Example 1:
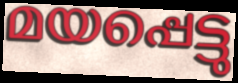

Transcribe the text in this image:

മയപ്പെട്ടു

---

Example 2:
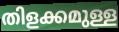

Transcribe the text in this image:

തിളക്കമുള്ള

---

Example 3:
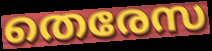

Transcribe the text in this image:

തെരേസ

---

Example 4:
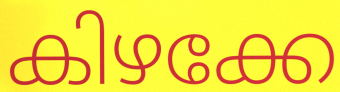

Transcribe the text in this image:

കിഴക്കേ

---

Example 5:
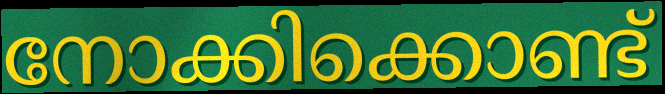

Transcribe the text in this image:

നോക്കിക്കൊണ്ട്